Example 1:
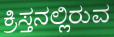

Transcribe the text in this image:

ಕ್ರಿಸ್ತನಲ್ಲಿರುವ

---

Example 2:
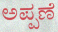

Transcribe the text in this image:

ಅಪ್ಪಣೆ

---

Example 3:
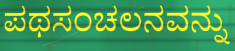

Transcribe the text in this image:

ಪಥಸಂಚಲನವನ್ನು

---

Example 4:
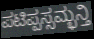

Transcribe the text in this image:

ಪಟಿಪ್ಪಸ್ಸಮ್ಭನ್ತಿ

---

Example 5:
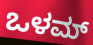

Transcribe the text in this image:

ಒಳಮ್